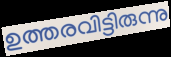
ഉത്തരവിട്ടിരുന്നു